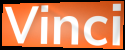
Vinci